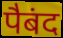
पैबंद